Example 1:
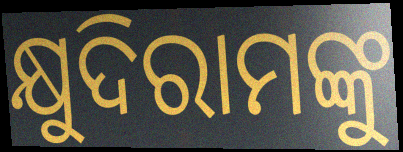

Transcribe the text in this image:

କ୍ଷୁଦିରାମଙ୍କୁ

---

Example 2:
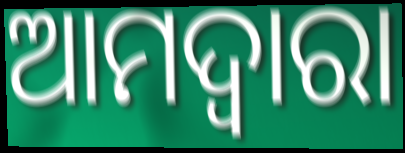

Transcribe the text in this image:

ଆମଦ୍ୱାରା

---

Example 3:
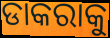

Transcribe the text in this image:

ଡାକରାକୁ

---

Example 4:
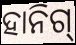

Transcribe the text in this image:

ହାନିଗ୍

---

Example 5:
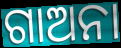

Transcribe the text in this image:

ଗାଅନା